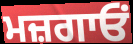
ਮਜ਼ਗਾਓਂ